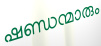
ഷണ്ഡന്മാരും